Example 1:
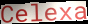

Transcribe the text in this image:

Celexa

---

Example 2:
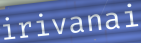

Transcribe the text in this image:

irivanai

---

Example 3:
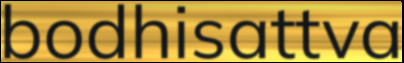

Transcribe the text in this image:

bodhisattva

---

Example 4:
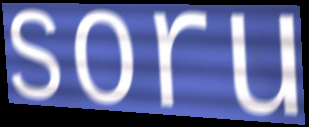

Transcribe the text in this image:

soru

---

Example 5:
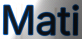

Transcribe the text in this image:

Mati